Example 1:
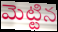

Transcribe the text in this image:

మెట్టిన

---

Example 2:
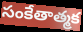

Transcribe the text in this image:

సంకేతాత్మక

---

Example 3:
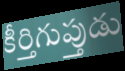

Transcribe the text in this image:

కీర్తిగుప్తుడు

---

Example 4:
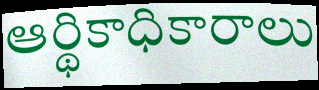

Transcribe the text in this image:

ఆర్థికాధికారాలు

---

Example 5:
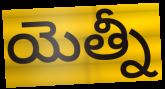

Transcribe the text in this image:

యెత్నీ